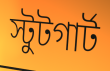
স্টুটগার্ট